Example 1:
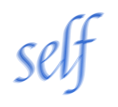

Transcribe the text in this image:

self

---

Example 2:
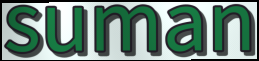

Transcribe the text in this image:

suman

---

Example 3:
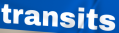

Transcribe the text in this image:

transits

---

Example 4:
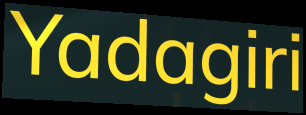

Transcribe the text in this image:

Yadagiri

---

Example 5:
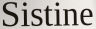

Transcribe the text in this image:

Sistine